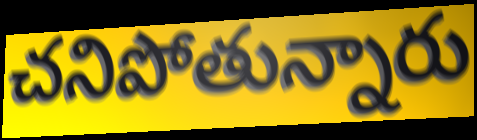
చనిపోతున్నారు